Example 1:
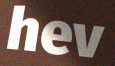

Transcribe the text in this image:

hev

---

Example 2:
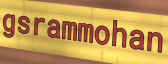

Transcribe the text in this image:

gsrammohan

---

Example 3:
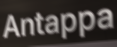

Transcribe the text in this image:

Antappa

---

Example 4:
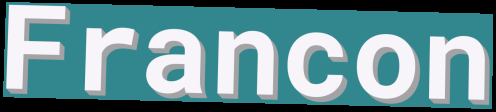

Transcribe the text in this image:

Francon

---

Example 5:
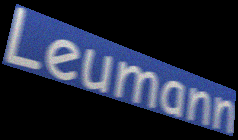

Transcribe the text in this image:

Leumann